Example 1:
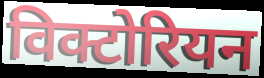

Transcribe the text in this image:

विक्टोरियन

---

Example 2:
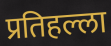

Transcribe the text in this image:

प्रतिहल्ला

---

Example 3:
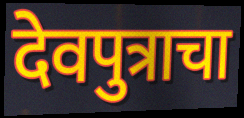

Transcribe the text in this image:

देवपुत्राचा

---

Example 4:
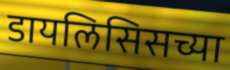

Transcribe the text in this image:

डायलिसिसच्या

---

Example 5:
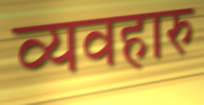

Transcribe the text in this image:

व्यवहारु